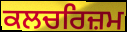
ਕਲਚਰਿਜ਼ਮ